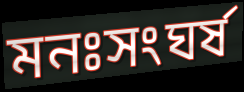
মনঃসংঘর্ষ